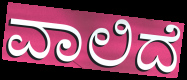
ವಾಲಿದೆ